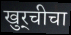
खुर्चीचा